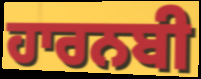
ਹਾਰਨਬੀ